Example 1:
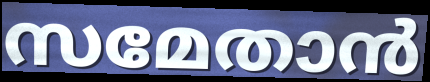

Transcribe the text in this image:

സമേതാൻ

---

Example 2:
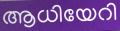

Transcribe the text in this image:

ആധിയേറി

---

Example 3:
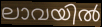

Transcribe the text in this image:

ലാവയിൽ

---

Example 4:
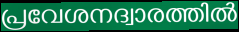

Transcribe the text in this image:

പ്രവേശനദ്വാരത്തിൽ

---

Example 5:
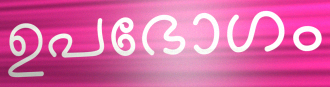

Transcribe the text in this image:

ഉപഭോഗം